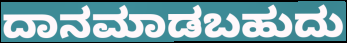
ದಾನಮಾಡಬಹುದು